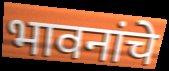
भावनांचे